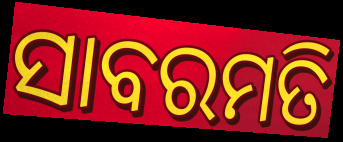
ସାବରମତି